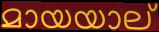
മായയാല്